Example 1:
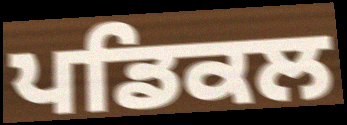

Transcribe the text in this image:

ਪਡਿਕਲ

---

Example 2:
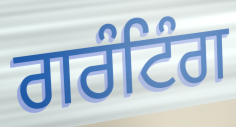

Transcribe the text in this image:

ਗਰੰਟਿੰਗ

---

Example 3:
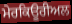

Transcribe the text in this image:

ਮੇਰਕਿਊਰੀਅਲ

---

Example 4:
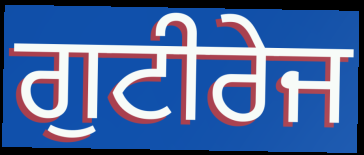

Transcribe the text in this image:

ਗੁਟੀਰੇਜ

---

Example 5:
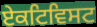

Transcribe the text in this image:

ਏਕਟਿਵਿਸਟ